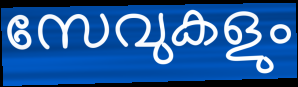
സേവുകളും